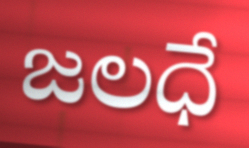
జలధే